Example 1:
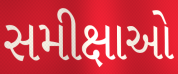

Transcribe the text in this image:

સમીક્ષાઓ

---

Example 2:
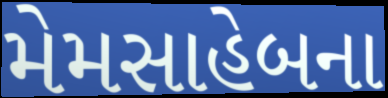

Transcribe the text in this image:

મેમસાહેબના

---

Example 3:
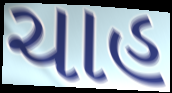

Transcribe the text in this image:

ચાહ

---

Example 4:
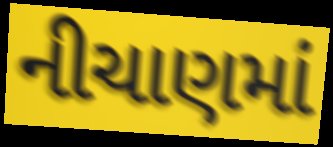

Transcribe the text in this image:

નીચાણમાં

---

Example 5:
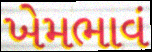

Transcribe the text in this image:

ખેમભાવં